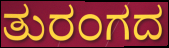
ತುರಂಗದ